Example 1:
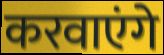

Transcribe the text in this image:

करवाएंगे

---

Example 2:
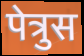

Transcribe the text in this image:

पेत्रुस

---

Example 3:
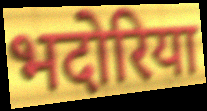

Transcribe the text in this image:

भदोरिया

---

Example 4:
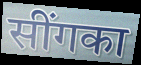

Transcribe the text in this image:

सींगका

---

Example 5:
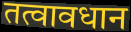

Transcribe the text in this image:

तत्‍वावधान